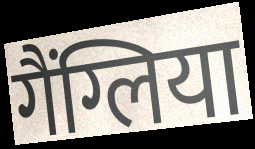
गैंग्लिया